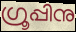
ഗ്രൂപ്പിനു